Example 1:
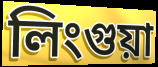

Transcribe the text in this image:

লিংগুয়া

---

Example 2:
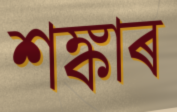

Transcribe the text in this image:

শঙ্কাৰ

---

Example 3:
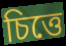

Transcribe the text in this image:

চিত্তে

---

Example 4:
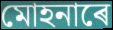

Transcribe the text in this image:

মোহনাৰে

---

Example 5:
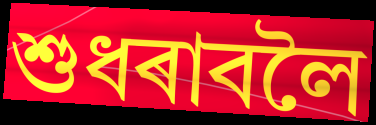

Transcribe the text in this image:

শুধৰাবলৈ